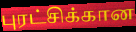
புரட்சிக்கான